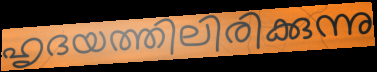
ഹൃദയത്തിലിരിക്കുന്നു